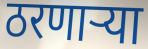
ठरणाऱ्या